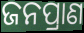
ଜନପ୍ରାଣ